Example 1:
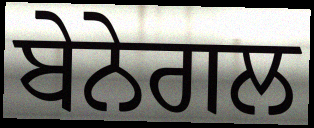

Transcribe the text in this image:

ਬੇਨੇਗਲ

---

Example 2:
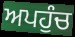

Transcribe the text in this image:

ਅਪਹੁੰਚ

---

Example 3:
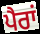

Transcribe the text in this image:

ਪੈਰਾਂ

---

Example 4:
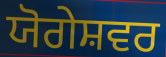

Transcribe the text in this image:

ਯੋਗੇਸ਼ਵਰ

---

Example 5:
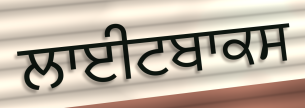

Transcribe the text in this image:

ਲਾਈਟਬਾਕਸ